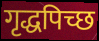
गृद्धपिच्छ